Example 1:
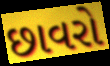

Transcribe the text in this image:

છાવરો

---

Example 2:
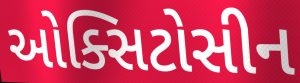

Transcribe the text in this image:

ઓક્સિટોસીન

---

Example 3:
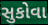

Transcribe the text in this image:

સુકોવા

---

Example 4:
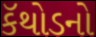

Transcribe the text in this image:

કૅથોડનો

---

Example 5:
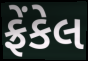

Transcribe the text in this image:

ફ્રેંકેલ